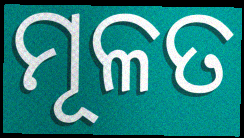
ମୂଳତ